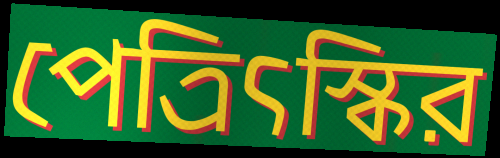
পেত্রিৎস্কির